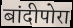
बांदीपोरा